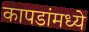
कापडांमध्ये